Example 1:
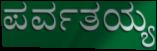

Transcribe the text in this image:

ಪರ್ವತಯ್ಯ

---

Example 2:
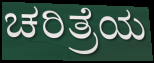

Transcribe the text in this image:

ಚರಿತ್ರೆಯ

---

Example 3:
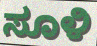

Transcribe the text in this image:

ಸೂಳಿ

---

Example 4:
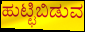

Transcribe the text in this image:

ಹುಟ್ಟಿಬಿಡುವ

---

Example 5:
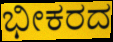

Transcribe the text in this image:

ಭೀಕರದ